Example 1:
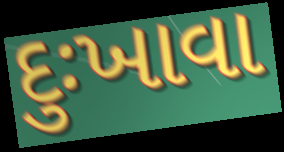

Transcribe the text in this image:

દુઃખાવા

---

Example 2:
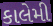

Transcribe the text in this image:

કાલેમી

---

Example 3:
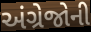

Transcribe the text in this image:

અંગ્રેજોની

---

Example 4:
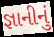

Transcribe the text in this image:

જ્ઞાનીનું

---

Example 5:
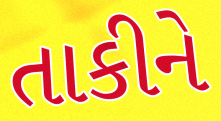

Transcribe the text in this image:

તાકીને